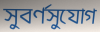
সুবর্ণসুযোগ